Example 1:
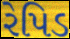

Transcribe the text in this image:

રેપિડ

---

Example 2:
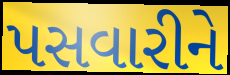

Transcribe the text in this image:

પસવારીને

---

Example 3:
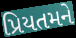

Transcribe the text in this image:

પ્રિયતમને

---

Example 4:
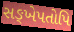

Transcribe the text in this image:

સઙ્ખેપતોપિ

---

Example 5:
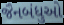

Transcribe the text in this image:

જૈનબંધુઓ